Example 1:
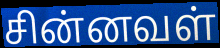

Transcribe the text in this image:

சின்னவள்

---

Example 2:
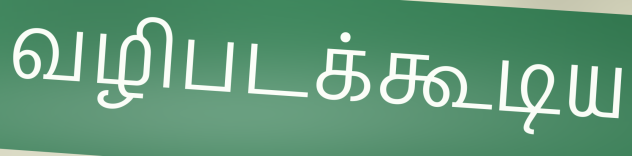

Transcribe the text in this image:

வழிபடக்கூடிய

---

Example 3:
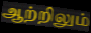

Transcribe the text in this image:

ஆற்றிலும்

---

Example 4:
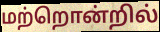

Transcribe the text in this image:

மற்றொன்றில்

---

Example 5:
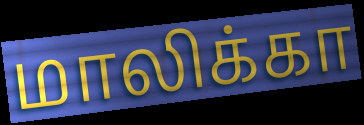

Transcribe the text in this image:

மாலிக்கா